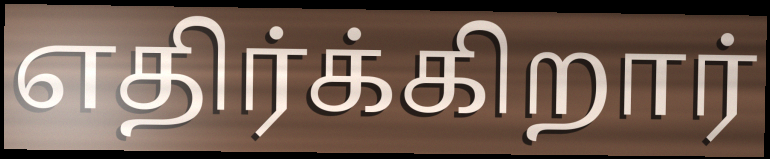
எதிர்க்கிறார்